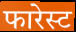
फारेस्‍ट